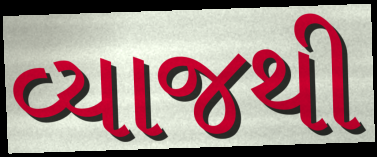
વ્યાજથી